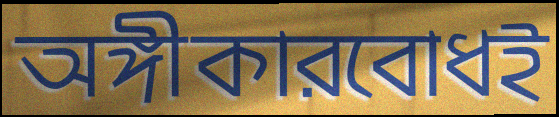
অঙ্গীকারবোধই